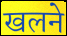
खलने